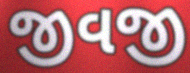
જીવજી